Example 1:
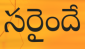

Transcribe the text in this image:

సరైందే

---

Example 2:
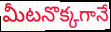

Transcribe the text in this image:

మీటనొక్కగానే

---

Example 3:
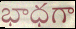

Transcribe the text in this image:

భాధగా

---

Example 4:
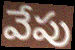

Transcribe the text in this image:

వేపు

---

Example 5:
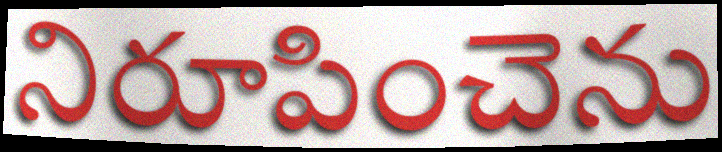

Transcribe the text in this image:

నిరూపించెను